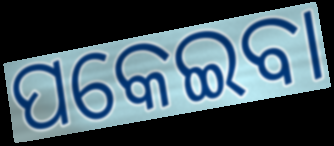
ପକେଇବା